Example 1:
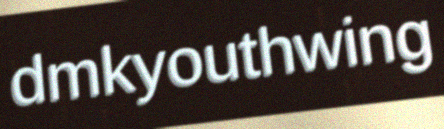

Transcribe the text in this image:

dmkyouthwing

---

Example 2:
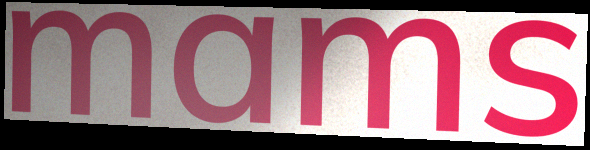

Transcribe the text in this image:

mams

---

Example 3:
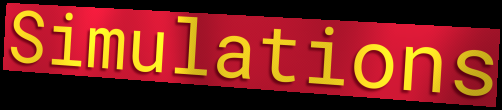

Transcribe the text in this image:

Simulations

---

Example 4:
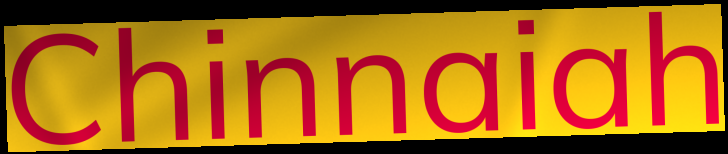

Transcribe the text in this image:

Chinnaiah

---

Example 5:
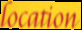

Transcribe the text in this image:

location